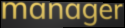
manager